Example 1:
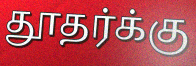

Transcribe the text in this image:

தூதர்க்கு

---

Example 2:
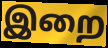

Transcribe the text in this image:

இறை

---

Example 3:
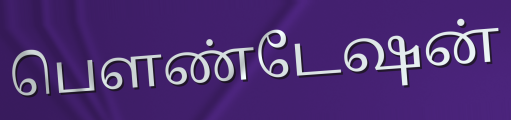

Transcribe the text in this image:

பௌண்டேஷன்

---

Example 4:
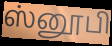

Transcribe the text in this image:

ஸ்னூபி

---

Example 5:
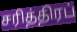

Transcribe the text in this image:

சரித்திரப்